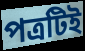
পত্রটিই